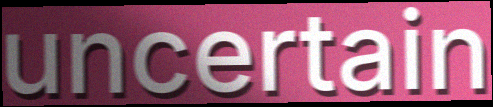
uncertain